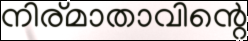
നിര്മാതാവിന്റെ